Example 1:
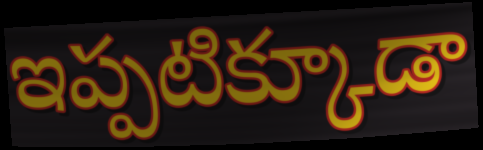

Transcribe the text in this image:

ఇప్పటిక్కూడా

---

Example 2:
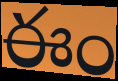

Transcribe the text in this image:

ఈం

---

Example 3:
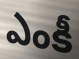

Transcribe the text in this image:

ఎంకీ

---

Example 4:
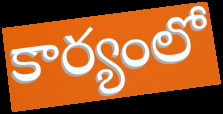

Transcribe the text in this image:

కార్యంలో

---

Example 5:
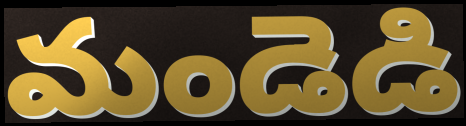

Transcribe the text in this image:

మండెడి